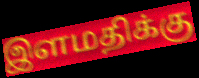
இளமதிக்கு